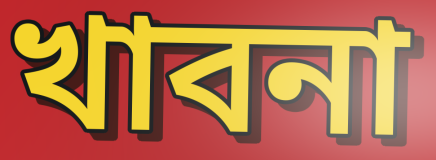
খাবনা